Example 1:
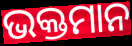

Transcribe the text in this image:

ଭକ୍ତମାନ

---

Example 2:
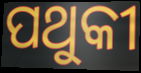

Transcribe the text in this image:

ପଥୁକୀ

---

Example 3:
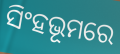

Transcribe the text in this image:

ସିଂହଭୂମରେ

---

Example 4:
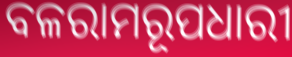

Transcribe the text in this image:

ବଳରାମରୂପଧାରୀ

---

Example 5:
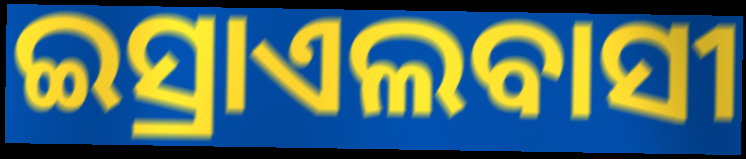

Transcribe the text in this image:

ଇସ୍ରାଏଲବାସୀ